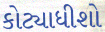
કોટ્યાધીશો